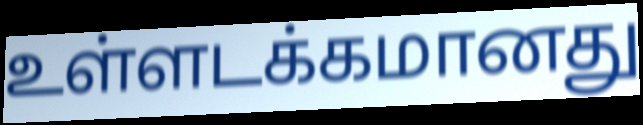
உள்ளடக்கமானது